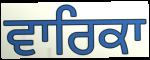
ਵਾਰਿਕਾ